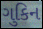
ગુકિન